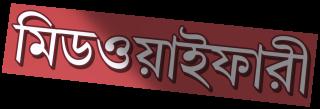
মিডওয়াইফারী